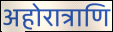
अहोरात्राणि